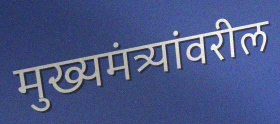
मुख्यमंत्र्यांवरील